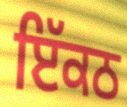
ਇੱਕਠ